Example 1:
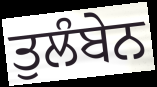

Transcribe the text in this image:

ਤੁਲੰਬੇਨ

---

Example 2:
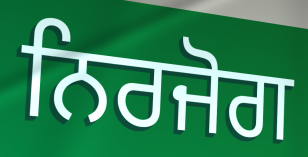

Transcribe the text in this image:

ਨਿਰਜੋਗ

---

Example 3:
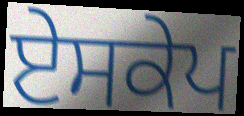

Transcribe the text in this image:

ਏਸਕੇਪ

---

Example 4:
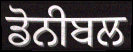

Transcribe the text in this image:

ਡੋਨੀਬਲ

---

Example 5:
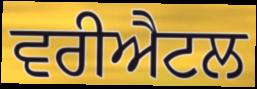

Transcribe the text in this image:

ਵਰੀਐਟਲ